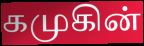
கமுகின்